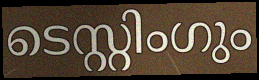
ടെസ്റ്റിംഗും